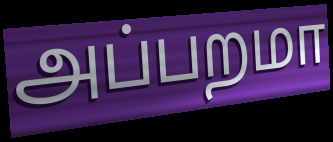
அப்பறமா